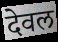
देवल